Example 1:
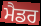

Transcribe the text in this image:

ਮੈਡਰ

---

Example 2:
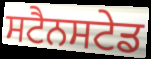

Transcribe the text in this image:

ਸਟੈਨਸਟੇਡ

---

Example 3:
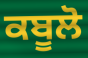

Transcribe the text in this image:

ਕਬੂਲੋ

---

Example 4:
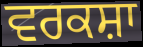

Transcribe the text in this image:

ਵਰਕਸ਼ਾ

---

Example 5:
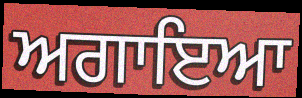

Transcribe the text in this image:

ਅਗਾਇਆ